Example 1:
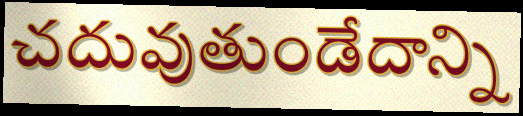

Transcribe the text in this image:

చదువుతుండేదాన్ని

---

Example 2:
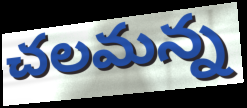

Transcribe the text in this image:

చలమన్న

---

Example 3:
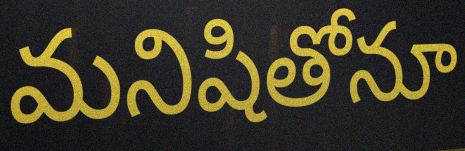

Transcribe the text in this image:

మనిషితోనూ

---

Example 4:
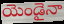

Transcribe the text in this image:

యెండైనా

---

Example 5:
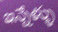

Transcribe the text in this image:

ఇన్నేళ్ళు